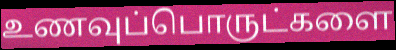
உணவுப்பொருட்களை